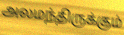
அலமந்திருக்கும்